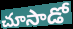
చూసాడో